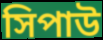
সিপাউ